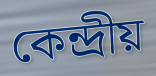
কেন্দ্রীয়